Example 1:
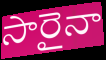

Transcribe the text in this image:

సారైనా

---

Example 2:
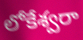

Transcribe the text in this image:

లోకేశ్వరా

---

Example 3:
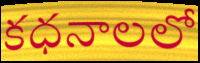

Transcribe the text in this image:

కధనాలలో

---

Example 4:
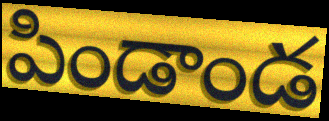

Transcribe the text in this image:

పిండాండ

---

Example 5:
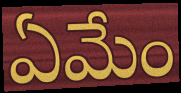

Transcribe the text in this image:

ఏమేం